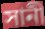
সানী